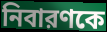
নিবারণকে